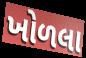
ખોળલા